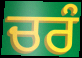
ਚਰੰ